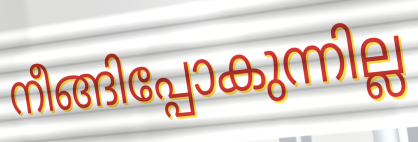
നീങ്ങിപ്പോകുന്നില്ല